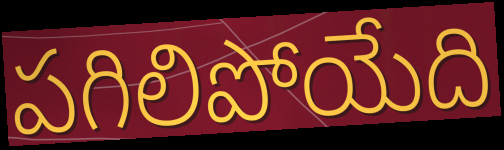
పగిలిపోయేది